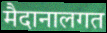
मैदानालगत